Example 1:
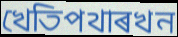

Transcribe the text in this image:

খেতিপথাৰখন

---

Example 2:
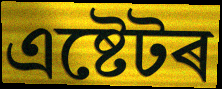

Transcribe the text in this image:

এষ্টেটৰ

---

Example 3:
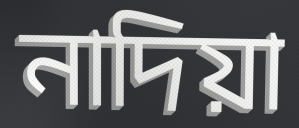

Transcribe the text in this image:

নাদিয়া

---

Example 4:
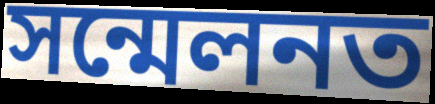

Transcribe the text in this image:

সন্মেলনত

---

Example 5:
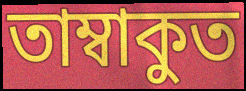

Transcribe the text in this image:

তাম্বাকুত